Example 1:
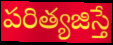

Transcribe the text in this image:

పరిత్యజిస్తే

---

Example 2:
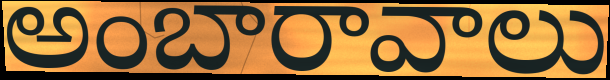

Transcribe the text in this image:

అంబారావాలు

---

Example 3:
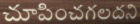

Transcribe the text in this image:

చూపించగలదని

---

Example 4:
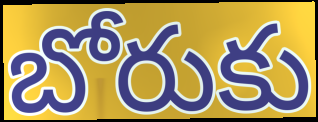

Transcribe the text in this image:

బోరుకు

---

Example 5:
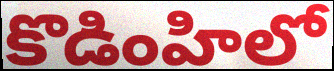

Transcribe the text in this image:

కొడింహిలో